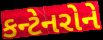
કન્ટેનરોને